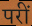
परीं